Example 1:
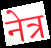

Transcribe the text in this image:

नेत्र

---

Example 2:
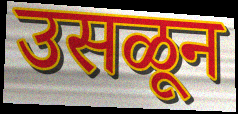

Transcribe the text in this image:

उसळून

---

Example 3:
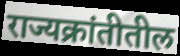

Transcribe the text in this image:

राज्यक्रांतीतील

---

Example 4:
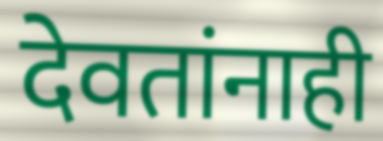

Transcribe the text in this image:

देवतांनाही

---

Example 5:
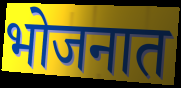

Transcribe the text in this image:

भोजनात